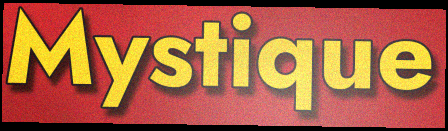
Mystique